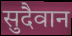
सुदैवान